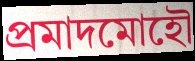
প্রমাদমোহৌ